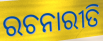
ରଚନାରୀତି